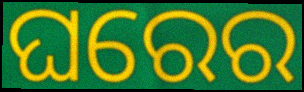
ଘରେର